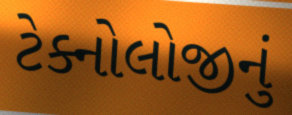
ટેક્નોલોજીનું